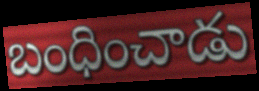
బంధించాడు